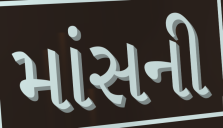
માંસની